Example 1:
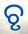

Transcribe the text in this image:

ଚୃ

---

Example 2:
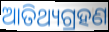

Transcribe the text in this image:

ଆତିଥ୍ୟଗ୍ରହଣ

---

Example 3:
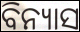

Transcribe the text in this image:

ବିନ୍ୟାସ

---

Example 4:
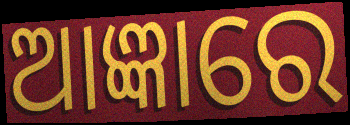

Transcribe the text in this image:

ଆଜ୍ଞାରେ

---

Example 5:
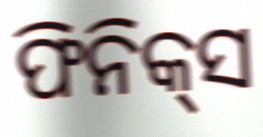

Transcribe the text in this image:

ଫିନିକ୍‍ସ